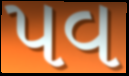
પવ